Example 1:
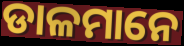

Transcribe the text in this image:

ଡାଳମାନେ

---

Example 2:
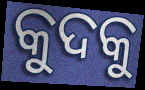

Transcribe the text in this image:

କୁଦକୁ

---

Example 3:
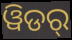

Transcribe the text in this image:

ୱିଡର୍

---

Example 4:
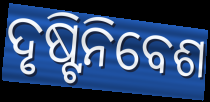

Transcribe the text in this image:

ଦୃଷ୍ଟିନିବେଶ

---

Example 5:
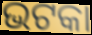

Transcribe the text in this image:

ଭଟକା